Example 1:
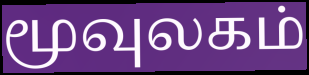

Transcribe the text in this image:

மூவுலகம்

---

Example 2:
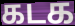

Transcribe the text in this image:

கடக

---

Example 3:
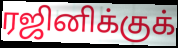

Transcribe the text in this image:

ரஜினிக்குக்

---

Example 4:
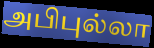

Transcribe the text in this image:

அபிபுல்லா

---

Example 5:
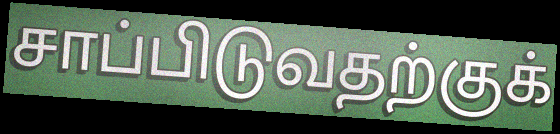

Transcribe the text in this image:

சாப்பிடுவதற்குக்